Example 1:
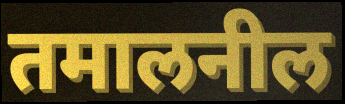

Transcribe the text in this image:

तमालनील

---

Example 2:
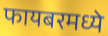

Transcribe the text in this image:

फायबरमध्ये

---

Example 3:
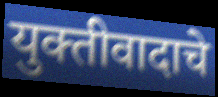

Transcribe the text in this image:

युक्तीवादाचे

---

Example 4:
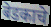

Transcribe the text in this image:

बेडकाचे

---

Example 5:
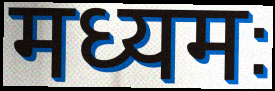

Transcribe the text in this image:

मध्यमः